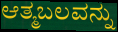
ಆತ್ಮಬಲವನ್ನು